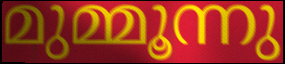
മുമ്മൂന്നു